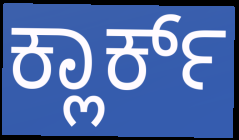
ಕ್ಲಾರ್ಕ್